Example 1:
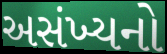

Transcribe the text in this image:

અસંખ્યનો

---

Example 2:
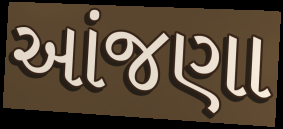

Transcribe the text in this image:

આંજણા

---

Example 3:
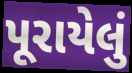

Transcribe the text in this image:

પૂરાયેલું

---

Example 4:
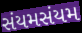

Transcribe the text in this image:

સંયમસંયમ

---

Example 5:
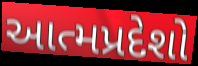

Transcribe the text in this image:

આત્મપ્રદેશો